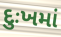
દુઃખમાં